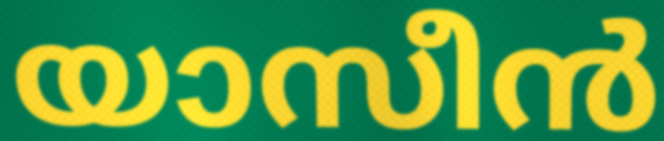
യാസീൻ